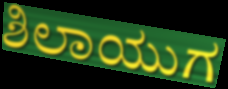
ಶಿಲಾಯುಗ